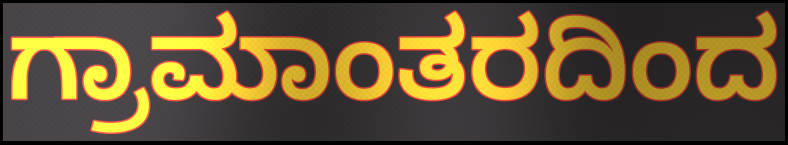
ಗ್ರಾಮಾಂತರದಿಂದ